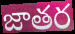
జాతర